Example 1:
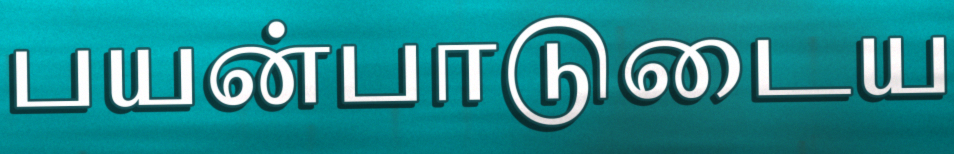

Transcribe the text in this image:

பயன்பாடுடைய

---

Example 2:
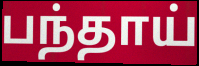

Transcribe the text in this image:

பந்தாய்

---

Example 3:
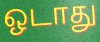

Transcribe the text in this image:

ஒடாது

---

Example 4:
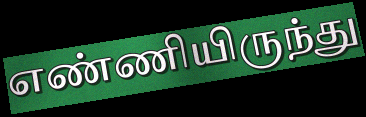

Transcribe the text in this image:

எண்ணியிருந்து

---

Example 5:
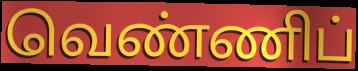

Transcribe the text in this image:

வெண்ணிப்